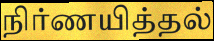
நிர்ணயித்தல்